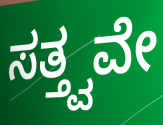
ಸತ್ತ್ವವೇ